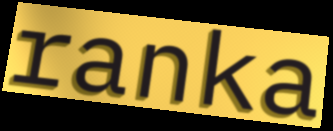
ranka